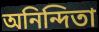
অনিন্দিতা